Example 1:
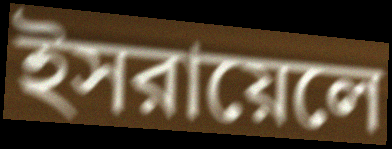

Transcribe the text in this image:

ইসরায়েলে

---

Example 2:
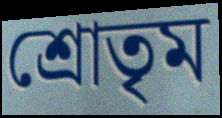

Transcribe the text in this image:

শ্রোতৃম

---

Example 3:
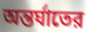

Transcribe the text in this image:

অন্তর্ঘাতের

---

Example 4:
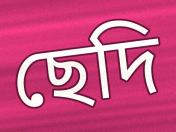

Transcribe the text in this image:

ছেদি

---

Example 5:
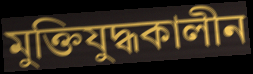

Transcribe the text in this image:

মুক্তিযুদ্ধকালীন